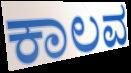
ಕಾಲವ